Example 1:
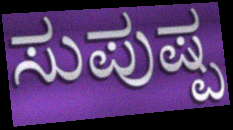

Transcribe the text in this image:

ಸುಪುಷ್ಪ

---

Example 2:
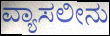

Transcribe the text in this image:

ವ್ಯಾಸಲೀನು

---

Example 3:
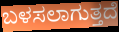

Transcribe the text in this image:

ಬಳಸಲಾಗುತ್ತದೆ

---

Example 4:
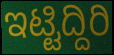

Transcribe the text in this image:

ಇಟ್ಟಿದ್ದಿರಿ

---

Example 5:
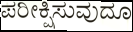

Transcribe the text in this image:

ಪರೀಕ್ಷಿಸುವುದೂ